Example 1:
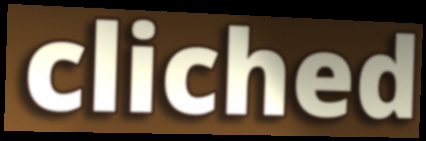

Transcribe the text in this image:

cliched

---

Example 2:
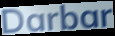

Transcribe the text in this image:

Darbar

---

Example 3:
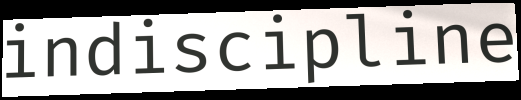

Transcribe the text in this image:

indiscipline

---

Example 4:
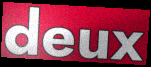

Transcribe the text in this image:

deux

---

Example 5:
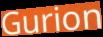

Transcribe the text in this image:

Gurion